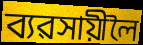
ব্যৱসায়ীলৈ